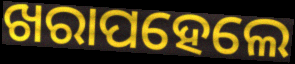
ଖରାପହେଲେ